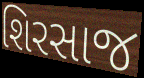
શિરસાજ